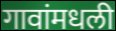
गावांमधली